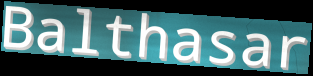
Balthasar